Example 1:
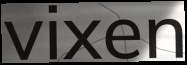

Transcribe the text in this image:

vixen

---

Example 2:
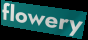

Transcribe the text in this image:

flowery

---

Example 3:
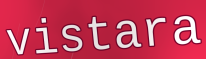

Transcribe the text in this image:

vistara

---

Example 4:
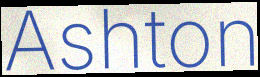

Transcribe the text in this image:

Ashton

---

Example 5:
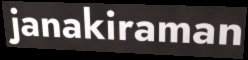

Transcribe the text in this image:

janakiraman